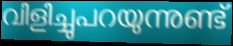
വിളിച്ചുപറയുന്നുണ്ട്